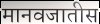
मानवजातीस